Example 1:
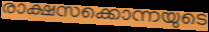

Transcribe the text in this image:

രാക്ഷസക്കൊന്നയുടെ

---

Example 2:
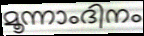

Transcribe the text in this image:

മൂന്നാംദിനം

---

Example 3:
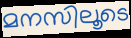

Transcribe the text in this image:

മനസിലൂടെ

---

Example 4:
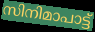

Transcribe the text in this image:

സിനിമാപാട്ട്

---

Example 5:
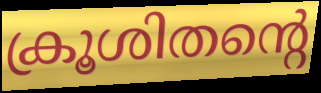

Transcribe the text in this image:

ക്രൂശിതന്റെ